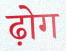
ढ़ोग